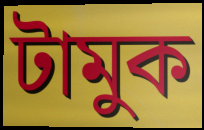
টামুক